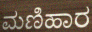
ಮಣಿಹಾರ